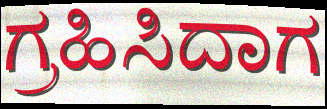
ಗ್ರಹಿಸಿದಾಗ